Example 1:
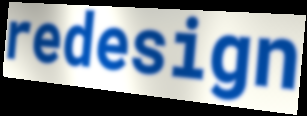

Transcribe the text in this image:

redesign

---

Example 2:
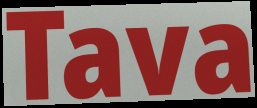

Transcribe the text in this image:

Tava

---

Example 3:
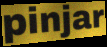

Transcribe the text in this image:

pinjar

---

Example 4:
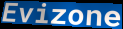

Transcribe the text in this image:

Evizone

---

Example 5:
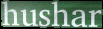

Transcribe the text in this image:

hushar